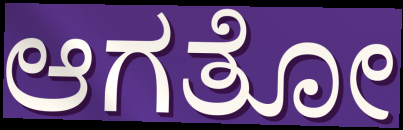
ಆಗತೋ